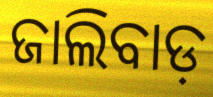
ଜାଲିବାଡ଼